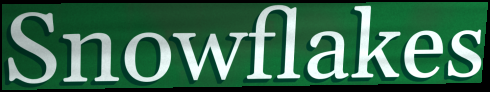
Snowflakes